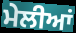
ਮੇਲੀਆਂ